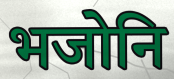
भजोनि